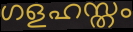
ഗളഹസ്തം